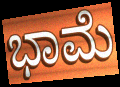
ಭಾಮೆ